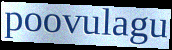
poovulagu